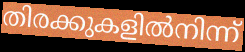
തിരക്കുകളിൽനിന്ന്